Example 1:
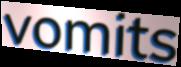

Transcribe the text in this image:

vomits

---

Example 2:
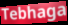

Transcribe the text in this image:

Tebhaga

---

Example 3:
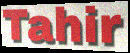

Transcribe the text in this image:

Tahir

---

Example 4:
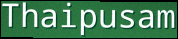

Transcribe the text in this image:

Thaipusam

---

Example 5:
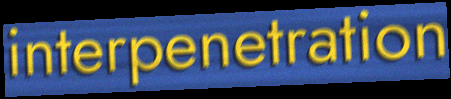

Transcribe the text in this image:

interpenetration